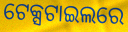
ଟେକ୍ସଟାଇଲରେ